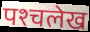
पश्चलेख